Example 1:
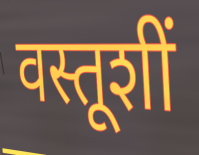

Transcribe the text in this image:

वस्तूशीं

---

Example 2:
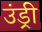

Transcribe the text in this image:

उंड्री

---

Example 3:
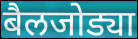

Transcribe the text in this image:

बैलजोड्या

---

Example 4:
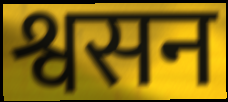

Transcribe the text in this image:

श्वसन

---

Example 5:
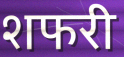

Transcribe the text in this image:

शफरी